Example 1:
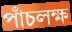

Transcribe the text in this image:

পাঁচলক্ষ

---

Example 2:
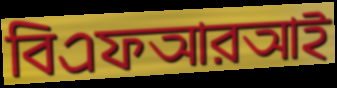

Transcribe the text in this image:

বিএফআরআই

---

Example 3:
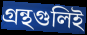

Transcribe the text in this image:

গ্রন্থগুলিই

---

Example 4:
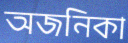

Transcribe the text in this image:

অজনিকা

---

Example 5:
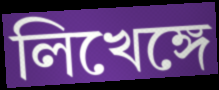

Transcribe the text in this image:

লিখেঙ্গে